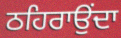
ਠਹਿਰਾਉਂਦਾ